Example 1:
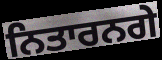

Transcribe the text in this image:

ਨਿਤਾਰਨਗੇ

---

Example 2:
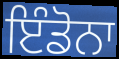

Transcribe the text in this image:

ਇੰਡੋਨਾ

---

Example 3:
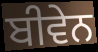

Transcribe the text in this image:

ਬੀਵੇਨ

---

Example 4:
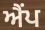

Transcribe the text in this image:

ਐਂਪ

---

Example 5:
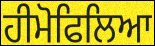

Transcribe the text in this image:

ਹੀਮੋਫਿਲਿਆ